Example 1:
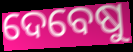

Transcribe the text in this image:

ଦେବେଷୁ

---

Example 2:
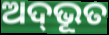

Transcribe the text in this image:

ଅଦ୍‍ଭୂତ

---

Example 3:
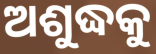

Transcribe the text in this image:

ଅଶୁଦ୍ଧକୁ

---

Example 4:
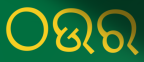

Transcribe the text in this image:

ଠଉର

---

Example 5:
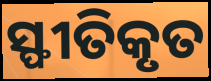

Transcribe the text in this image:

ସ୍ଫୀତିକୃତ